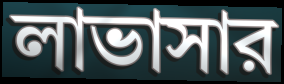
লাভাসার